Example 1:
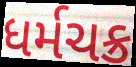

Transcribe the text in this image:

ધર્મચક્ર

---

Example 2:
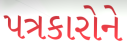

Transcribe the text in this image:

પત્રકારોને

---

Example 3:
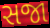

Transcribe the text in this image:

સજા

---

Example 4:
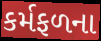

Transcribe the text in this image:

કર્મફળના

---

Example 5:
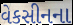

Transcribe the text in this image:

વેકસીનના